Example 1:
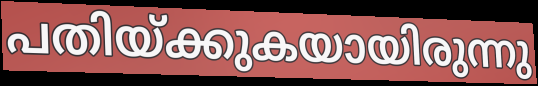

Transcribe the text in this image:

പതിയ്ക്കുകയായിരുന്നു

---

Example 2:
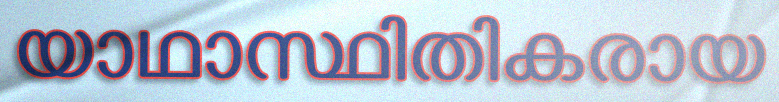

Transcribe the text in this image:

യാഥാസ്ഥിതികരായ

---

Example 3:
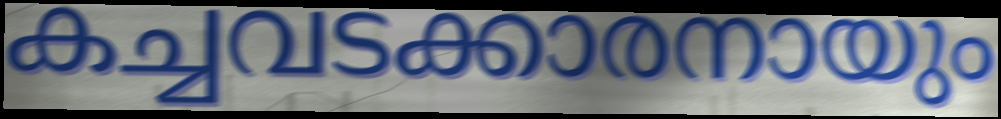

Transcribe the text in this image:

കച്ചവടക്കാരനായും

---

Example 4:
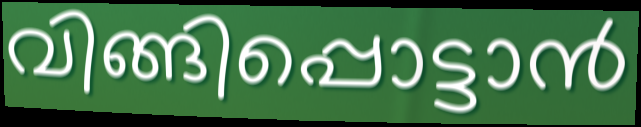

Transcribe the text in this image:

വിങ്ങിപ്പൊട്ടാൻ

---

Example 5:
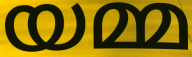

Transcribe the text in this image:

യമ്മ